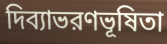
দিব্যাভরণভূষিতা